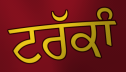
ਟਰੱਕਾੰ